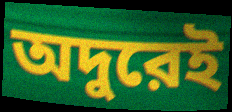
অদুরেই